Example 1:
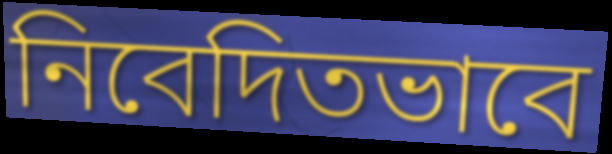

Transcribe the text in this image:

নিবেদিতভাবে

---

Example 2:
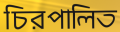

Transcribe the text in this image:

চিরপালিত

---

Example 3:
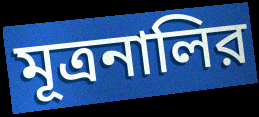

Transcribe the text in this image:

মূত্রনালির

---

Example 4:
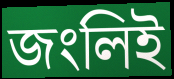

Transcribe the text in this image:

জংলিই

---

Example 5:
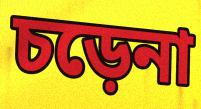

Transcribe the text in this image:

চড়েনা